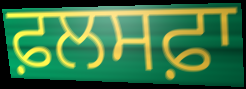
ਫ਼ਲਸਫ਼ਾ